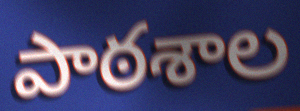
పాఠశాల